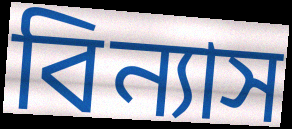
বিন্যাস